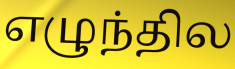
எழுந்தில